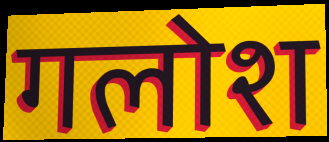
गलोश